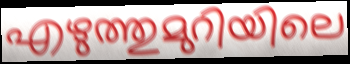
എഴുത്തുമുറിയിലെ